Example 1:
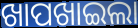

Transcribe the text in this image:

ଖାପଖାଇଲା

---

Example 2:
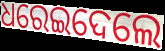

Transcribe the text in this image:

ଧରେଇଦେଲେ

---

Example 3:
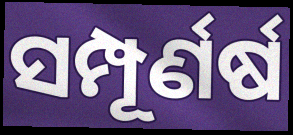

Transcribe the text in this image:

ସମ୍ପୂର୍ଣର୍ଷ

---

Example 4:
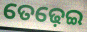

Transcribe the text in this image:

ତେଢ଼େଇ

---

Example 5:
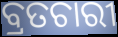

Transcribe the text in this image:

ବ୍ରତଚାରୀ